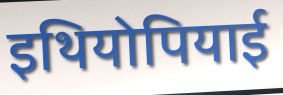
इथियोपियाई